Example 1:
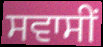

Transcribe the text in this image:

ਸਵਾਸੀਂ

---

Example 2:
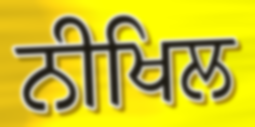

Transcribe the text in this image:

ਨੀਖਿਲ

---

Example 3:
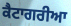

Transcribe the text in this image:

ਕੈਟਾਗਰੀਆ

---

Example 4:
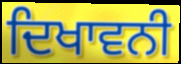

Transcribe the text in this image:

ਦਿਖਾਵਨੀ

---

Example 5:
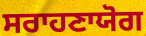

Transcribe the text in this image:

ਸਰਾਹਣਾਯੋਗ